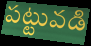
పట్టువడి